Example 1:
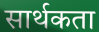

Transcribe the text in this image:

सार्थकता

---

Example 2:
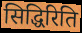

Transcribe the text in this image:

सिद्धिरिति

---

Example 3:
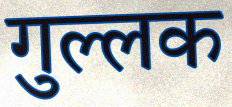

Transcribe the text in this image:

गुल्लक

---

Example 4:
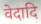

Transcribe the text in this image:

वेदादि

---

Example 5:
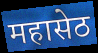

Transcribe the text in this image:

महासेठ